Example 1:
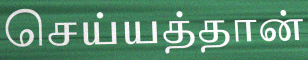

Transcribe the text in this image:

செய்யத்தான்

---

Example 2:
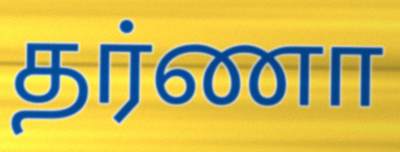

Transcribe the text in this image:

தர்ணா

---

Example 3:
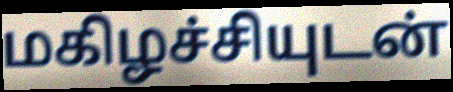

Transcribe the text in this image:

மகிழச்சியுடன்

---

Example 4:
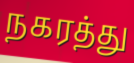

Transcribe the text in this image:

நகரத்து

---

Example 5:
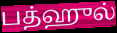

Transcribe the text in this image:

பத்ஹுல்